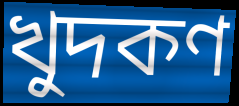
খুদকণ